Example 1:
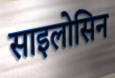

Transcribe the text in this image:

साइलोसिन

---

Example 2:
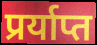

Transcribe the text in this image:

प्रर्याप्त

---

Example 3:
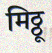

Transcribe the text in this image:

मिठ्ठू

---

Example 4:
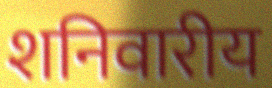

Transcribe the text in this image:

शनिवारीय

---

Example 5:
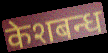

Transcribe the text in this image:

केशबन्ध